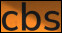
cbs